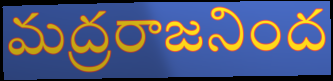
మద్రరాజనింద